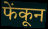
फेंकून